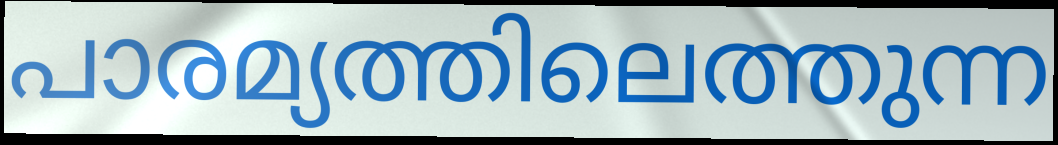
പാരമ്യത്തിലെത്തുന്ന